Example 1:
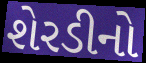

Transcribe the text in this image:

શેરડીનો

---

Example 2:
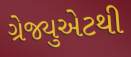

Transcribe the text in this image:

ગ્રેજ્યુએટથી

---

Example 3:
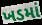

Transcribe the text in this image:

ખડમાં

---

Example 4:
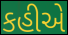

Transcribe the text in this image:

કહીએ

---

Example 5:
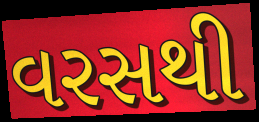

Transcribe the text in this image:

વરસથી